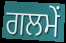
ਗਲਮੇਂ